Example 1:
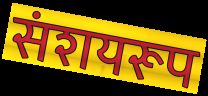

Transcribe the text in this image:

संशयरूप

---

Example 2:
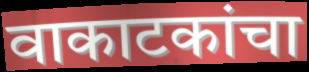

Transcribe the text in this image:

वाकाटकांचा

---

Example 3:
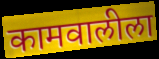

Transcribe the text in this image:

कामवालीला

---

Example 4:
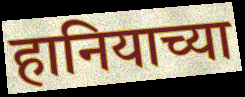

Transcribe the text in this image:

हानियाच्या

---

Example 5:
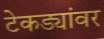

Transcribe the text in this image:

टेकड्यांवर